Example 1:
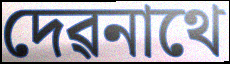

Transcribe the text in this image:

দেৱনাথে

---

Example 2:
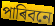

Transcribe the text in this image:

পাৰিবনে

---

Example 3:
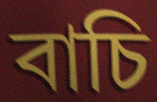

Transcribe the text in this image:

বাচি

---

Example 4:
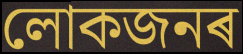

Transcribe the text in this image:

লোকজনৰ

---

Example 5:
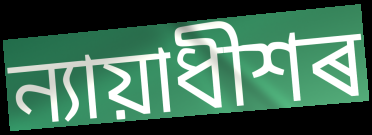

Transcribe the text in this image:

ন্যায়াধীশৰ